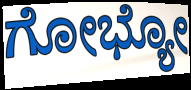
ಗೋಭ್ಯೋ